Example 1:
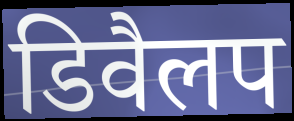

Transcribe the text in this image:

डिवैलप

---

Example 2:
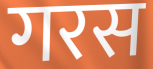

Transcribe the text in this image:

गरस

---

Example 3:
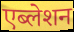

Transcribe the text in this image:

एब्लेशन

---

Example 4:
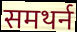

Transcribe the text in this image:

समथर्न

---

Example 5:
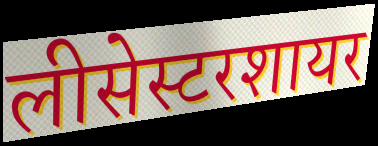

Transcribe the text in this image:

लीसेस्टरशायर